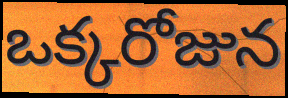
ఒక్కరోజున